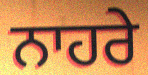
ਨਾਹਰੇ